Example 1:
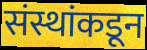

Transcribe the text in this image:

संस्थांकडून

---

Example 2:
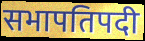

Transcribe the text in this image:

सभापतिपदी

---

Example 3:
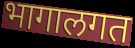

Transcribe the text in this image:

भागालगत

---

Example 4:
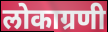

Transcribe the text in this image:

लोकाग्रणी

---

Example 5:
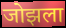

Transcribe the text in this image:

जोझला